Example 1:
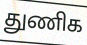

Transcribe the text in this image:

துணிக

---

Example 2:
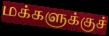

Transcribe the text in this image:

மக்களுக்குச்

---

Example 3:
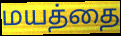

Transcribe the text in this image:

மயத்தை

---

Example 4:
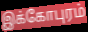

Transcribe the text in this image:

இக்கோபுரம்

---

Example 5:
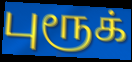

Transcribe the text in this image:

புரூக்